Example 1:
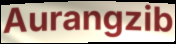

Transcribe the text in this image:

Aurangzib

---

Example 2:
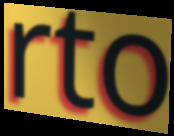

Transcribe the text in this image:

rto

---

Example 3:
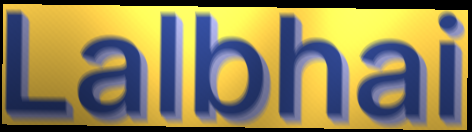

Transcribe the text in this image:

Lalbhai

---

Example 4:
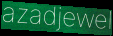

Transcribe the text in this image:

azadjewel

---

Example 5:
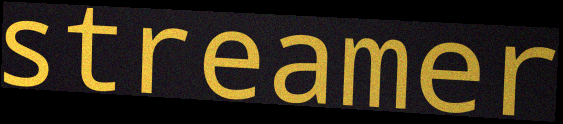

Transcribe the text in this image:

streamer